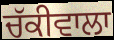
ਚੱਕੀਵਾਲਾ